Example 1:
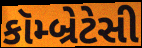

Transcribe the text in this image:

કૉમ્બ્રેટેસી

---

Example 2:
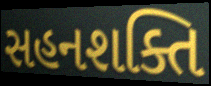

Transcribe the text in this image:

સહનશક્તિ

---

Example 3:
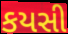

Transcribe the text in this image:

કયસી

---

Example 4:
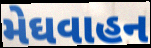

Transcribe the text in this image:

મેઘવાહન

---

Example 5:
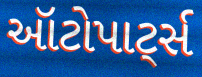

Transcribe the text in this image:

ઑટોપાર્ટ્સ